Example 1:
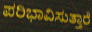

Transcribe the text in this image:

ಪರಿಭಾವಿಸುತ್ತಾರೆ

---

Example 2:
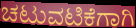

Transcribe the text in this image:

ಚಟುವಟಿಕೆಗಾಗಿ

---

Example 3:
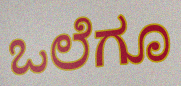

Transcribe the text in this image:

ಒಲೆಗೂ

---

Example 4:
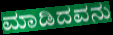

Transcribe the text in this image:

ಮಾಡಿದವನು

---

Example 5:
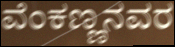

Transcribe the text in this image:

ವೆಂಕಣ್ಣನವರ